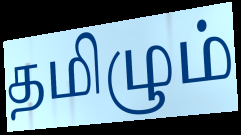
தமிழும்